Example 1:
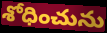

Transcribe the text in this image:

శోధించును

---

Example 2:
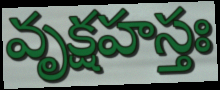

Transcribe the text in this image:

వృక్షహస్తః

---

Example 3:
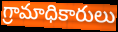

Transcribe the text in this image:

గ్రామాధికారులు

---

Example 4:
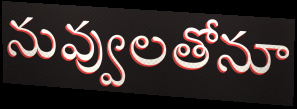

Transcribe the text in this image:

నువ్వులతోనూ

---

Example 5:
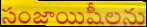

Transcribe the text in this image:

సంజాయిషీలను